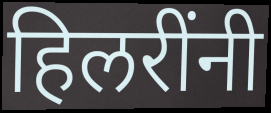
हिलरींनी